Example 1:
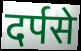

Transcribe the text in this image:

दर्पसे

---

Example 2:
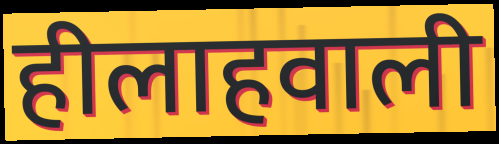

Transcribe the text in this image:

हीलाहवाली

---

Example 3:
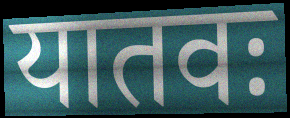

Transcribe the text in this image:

यातवः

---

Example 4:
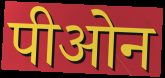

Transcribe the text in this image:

पीओन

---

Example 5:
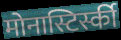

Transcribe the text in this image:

मोनास्टिर्स्की